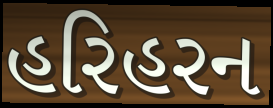
હરિહરન